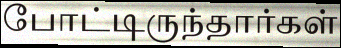
போட்டிருந்தார்கள்